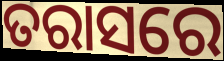
ତରାସରେ